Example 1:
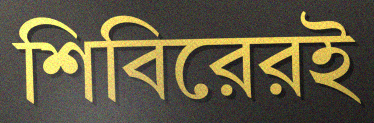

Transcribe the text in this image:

শিবিরেরই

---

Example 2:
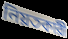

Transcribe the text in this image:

নিয়তকারী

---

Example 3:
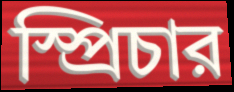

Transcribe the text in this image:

স্প্রিচার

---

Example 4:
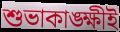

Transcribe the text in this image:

শুভাকাঙ্ক্ষীই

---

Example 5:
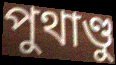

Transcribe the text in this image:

পুথাণ্ডু